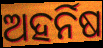
ଅହର୍ନିଷ